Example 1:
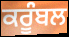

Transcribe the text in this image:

ਕਰੂੰਬਲ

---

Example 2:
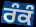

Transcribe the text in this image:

ਰੰਕੰ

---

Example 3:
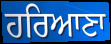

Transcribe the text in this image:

ਹਰਿਆਣਾ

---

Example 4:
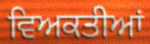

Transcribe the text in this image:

ਵਿਅਕਤੀਆਂ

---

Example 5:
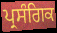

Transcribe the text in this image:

ਪ੍ਰਸੰਗਿਕ